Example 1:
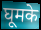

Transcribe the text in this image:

घूमके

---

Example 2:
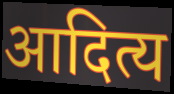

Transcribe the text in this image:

आदित्‍य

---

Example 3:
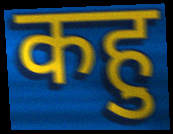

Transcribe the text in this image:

कहु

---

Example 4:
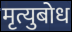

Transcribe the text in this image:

मृत्युबोध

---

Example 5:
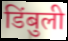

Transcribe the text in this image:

डिंबुली